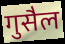
गुसैल